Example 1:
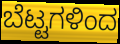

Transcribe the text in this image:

ಬೆಟ್ಟಗಳಿಂದ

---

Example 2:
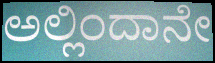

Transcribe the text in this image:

ಅಲ್ಲಿಂದಾನೇ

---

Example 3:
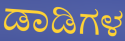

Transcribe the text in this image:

ಡಾಡಿಗಳ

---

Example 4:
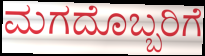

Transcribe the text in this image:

ಮಗದೊಬ್ಬರಿಗೆ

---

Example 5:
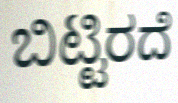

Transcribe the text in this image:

ಬಿಟ್ಟಿರದೆ